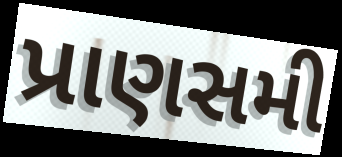
પ્રાણસમી